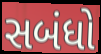
સબંધો